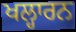
ਖਲ੍ਹਾਰਨ